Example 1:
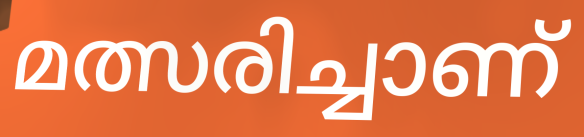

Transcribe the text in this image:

മത്സരിച്ചാണ്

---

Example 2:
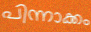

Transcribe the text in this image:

പിന്നാക്കം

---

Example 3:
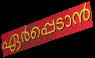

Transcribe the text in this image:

ഏർപ്പെടാൻ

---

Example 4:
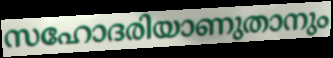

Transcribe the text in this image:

സഹോദരിയാണുതാനും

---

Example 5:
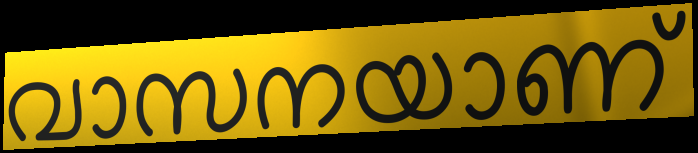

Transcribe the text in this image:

വാസനയാണ്